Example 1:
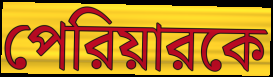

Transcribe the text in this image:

পেরিয়ারকে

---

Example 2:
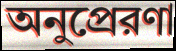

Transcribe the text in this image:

অনুপ্রেরণা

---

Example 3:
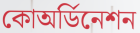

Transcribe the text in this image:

কোঅর্ডিনেশন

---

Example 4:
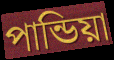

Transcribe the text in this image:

পান্ডিয়া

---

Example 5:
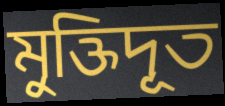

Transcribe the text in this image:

মুক্তিদূত